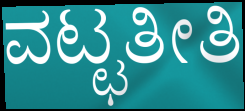
ವಟ್ಟತೀತಿ